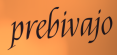
prebivajo